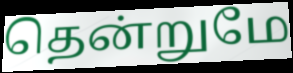
தென்றுமே